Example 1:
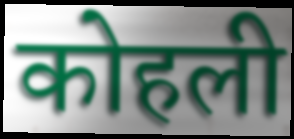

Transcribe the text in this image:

कोहली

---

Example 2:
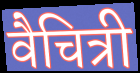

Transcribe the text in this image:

वैचित्री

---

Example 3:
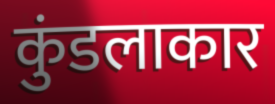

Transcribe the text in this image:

कुंडलाकार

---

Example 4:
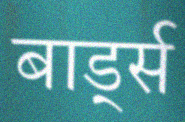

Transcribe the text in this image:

बार्ड्स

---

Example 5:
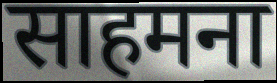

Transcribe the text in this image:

साहमना